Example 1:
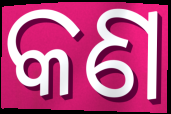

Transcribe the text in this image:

କଣ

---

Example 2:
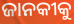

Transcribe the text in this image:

ଜାନକୀକୁ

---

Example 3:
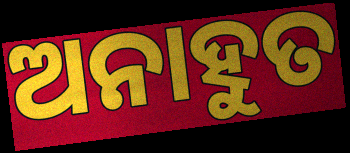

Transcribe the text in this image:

ଅନାହୁତ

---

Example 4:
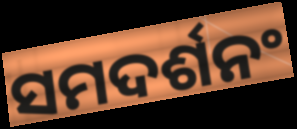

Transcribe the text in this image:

ସମଦର୍ଶନଂ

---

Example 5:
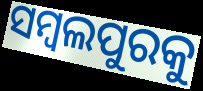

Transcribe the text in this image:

ସମ୍ୱଲପୁରକୁ